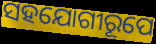
ସହଯୋଗୀରୂପେ